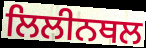
ਲਿਲੀਨਥਲ